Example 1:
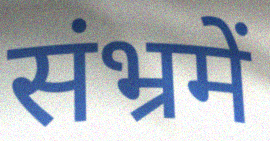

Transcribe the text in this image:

संभ्रमें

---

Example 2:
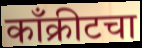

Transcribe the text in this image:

काँक्रीटचा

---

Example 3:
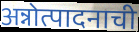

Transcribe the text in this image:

अन्नोत्पादनाची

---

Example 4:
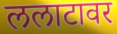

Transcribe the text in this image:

ललाटावर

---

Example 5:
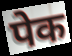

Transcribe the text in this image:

पेक